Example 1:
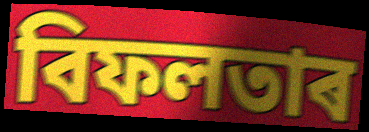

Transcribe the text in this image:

বিফলতাৰ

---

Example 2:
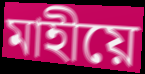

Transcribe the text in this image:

মাহীয়ে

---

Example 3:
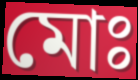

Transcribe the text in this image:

মোঃ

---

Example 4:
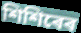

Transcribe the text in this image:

শিশিৰেৰ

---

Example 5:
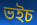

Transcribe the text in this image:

ভইচ